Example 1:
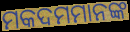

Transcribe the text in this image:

ମକଦମମାନଙ୍କ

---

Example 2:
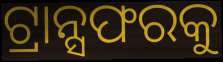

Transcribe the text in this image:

ଟ୍ରାନ୍ସଫରକୁ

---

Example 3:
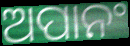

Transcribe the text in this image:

ଅପାନଂ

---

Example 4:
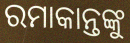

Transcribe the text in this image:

ରମାକାନ୍ତଙ୍କୁ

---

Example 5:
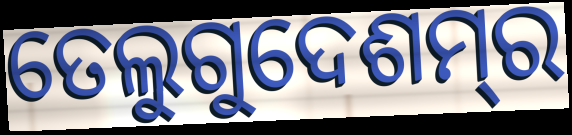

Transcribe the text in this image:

ତେଲୁଗୁଦେଶମ୍‌ର